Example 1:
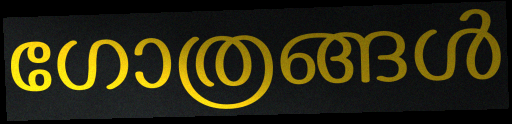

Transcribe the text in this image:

ഗോത്രങ്ങൾ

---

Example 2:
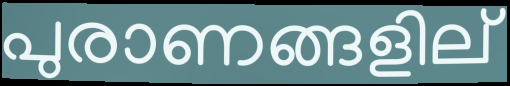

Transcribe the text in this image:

പുരാണങ്ങളില്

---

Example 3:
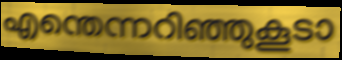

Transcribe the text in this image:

എന്തെന്നറിഞ്ഞുകൂടാ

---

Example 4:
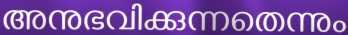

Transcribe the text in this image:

അനുഭവിക്കുന്നതെന്നും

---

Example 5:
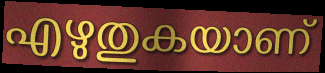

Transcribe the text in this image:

എഴുതുകയാണ്